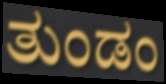
ತುಂಡಂ